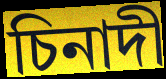
চিনাদী